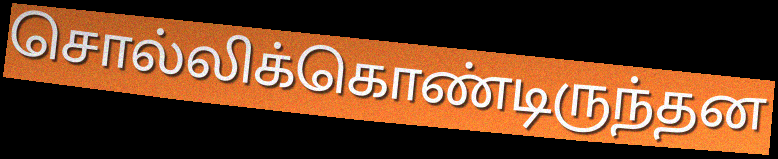
சொல்லிக்கொண்டிருந்தன